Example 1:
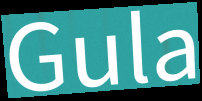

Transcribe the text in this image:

Gula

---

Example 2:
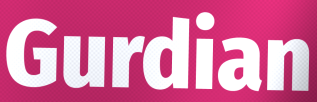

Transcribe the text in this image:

Gurdian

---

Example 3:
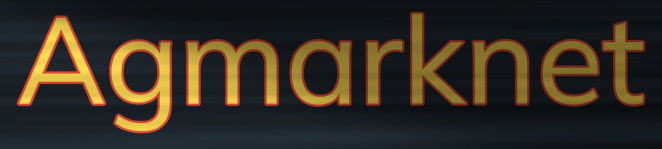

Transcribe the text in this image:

Agmarknet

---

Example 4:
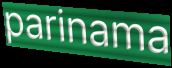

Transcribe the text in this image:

parinama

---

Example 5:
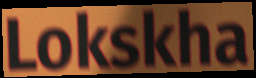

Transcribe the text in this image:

Lokskha